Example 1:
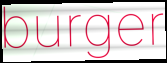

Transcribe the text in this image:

burger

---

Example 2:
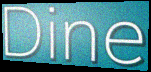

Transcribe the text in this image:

Dine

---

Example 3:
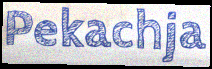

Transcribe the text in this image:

Pekachja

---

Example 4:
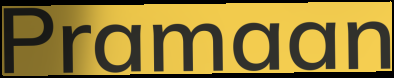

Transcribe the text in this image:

Pramaan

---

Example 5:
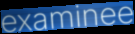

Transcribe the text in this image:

examinee